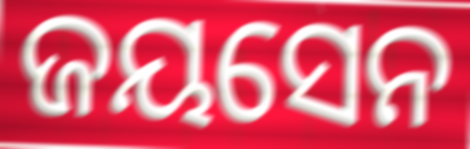
ଜୟସେନ